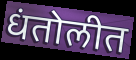
धंतोलीत